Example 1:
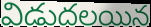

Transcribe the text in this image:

విడుదలయిన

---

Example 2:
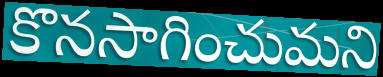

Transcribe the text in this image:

కొనసాగించుమని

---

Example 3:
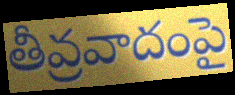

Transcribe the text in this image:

తీవ్రవాదంపై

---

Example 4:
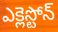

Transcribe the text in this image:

ఎక్లెస్టోన్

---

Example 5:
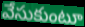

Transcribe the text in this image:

వేసుకుంటూ